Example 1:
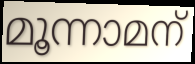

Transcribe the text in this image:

മൂന്നാമന്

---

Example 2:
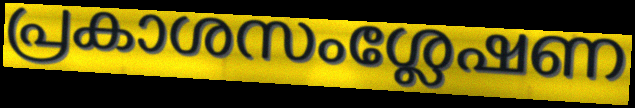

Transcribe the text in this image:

പ്രകാശസംശ്ലേഷണ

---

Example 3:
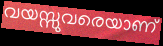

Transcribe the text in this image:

വയസ്സുവരെയാണ്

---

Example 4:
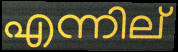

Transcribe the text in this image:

എന്നില്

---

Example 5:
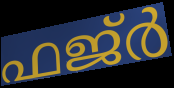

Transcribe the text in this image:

ഫജ്ർ